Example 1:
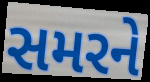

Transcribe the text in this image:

સમરને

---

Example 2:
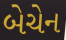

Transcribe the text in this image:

બેચેન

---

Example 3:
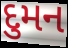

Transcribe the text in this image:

દુમન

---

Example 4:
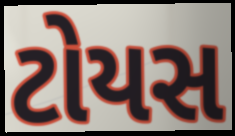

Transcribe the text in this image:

ટોયસ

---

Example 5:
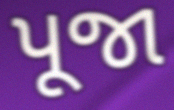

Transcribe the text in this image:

પૂજા